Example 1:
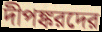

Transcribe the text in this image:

দীপঙ্করদের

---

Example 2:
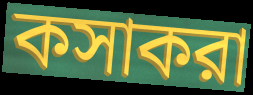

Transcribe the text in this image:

কসাকরা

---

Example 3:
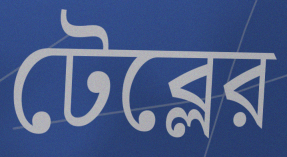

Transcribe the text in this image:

টেব্লের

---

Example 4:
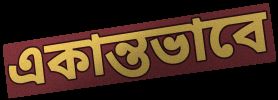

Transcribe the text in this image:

একান্তভাবে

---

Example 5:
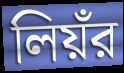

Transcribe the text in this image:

লিয়ঁর